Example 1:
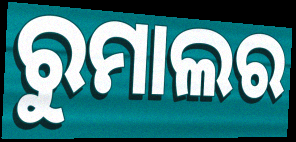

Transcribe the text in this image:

ରୁମାଲର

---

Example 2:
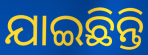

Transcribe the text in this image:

ଯାଇଛିନ୍ତି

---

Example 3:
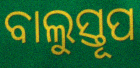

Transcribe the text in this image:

ବାଲୁସ୍ତୂପ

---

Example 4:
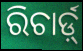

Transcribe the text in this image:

ରିଚାର୍ଡ଼୍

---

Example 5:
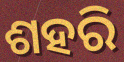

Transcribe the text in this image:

ଶହରି